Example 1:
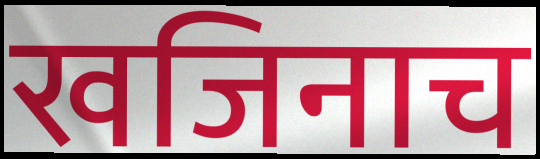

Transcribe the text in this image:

खजिनाच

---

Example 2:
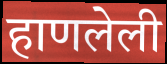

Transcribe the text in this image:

हाणलेली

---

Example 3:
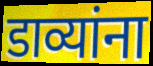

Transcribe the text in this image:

डाव्यांना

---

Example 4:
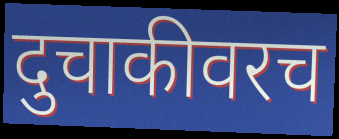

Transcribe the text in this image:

दुचाकीवरच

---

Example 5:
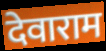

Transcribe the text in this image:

देवाराम